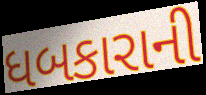
ધબકારાની